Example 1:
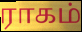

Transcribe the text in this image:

ராகம்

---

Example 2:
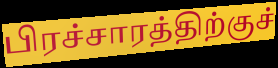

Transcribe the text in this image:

பிரச்சாரத்திற்குச்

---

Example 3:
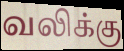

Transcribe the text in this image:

வலிக்கு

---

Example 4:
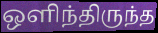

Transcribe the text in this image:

ஒளிந்திருந்த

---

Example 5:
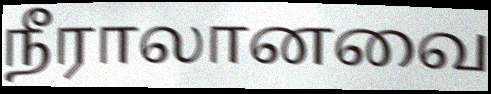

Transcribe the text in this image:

நீராலானவை